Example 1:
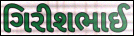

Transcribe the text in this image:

ગિરીશભાઈ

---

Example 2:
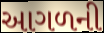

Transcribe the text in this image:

આગળની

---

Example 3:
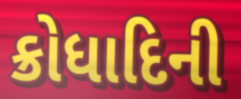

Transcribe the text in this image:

ક્રોધાદિની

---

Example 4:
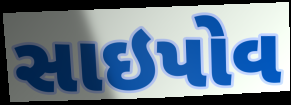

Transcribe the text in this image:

સાઇપોવ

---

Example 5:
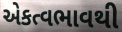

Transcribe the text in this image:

એકત્વભાવથી